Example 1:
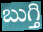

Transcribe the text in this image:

బుగ్తి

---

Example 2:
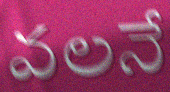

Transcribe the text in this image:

వలనే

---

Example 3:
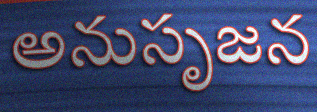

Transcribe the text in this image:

అనుసృజన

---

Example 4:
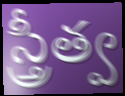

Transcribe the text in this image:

స్త్రీత్వ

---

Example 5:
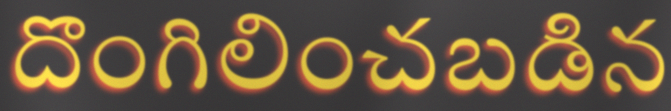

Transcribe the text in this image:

దొంగిలించబడిన